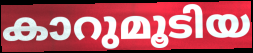
കാറുമൂടിയ